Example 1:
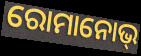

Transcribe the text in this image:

ରୋମାନୋଭ୍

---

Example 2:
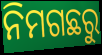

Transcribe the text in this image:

ନିମଗଛରୁ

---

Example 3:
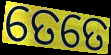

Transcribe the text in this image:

ତେତେ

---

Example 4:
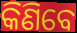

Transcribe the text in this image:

କିଣିବେ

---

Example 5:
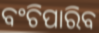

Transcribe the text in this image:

ବଂଚିପାରିବ